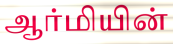
ஆர்மியின்